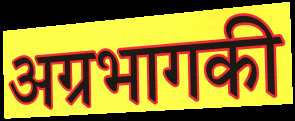
अग्रभागकी